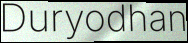
Duryodhan